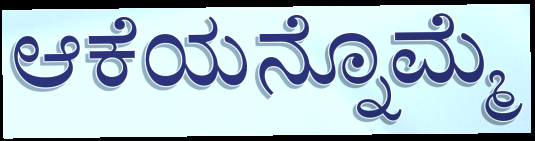
ಆಕೆಯನ್ನೊಮ್ಮೆ